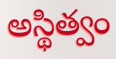
అస్థిత్వం